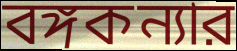
বঙ্গকন্যার